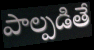
పాల్పడితే